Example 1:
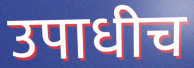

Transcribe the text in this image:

उपाधीच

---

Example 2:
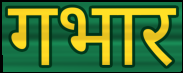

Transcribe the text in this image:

गभार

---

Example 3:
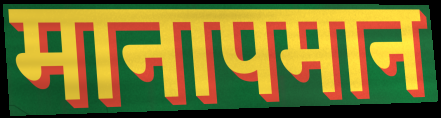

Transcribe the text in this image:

मानापमान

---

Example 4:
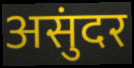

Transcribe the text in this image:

असुंदर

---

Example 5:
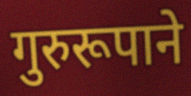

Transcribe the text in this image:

गुरुरूपाने